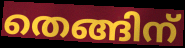
തെങ്ങിന്